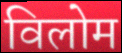
विलोम